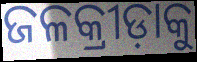
ଜଳକ୍ରୀଡ଼ାକୁ